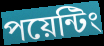
পয়েন্টিং